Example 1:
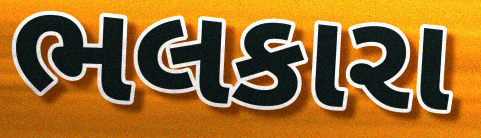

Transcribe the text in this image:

ભલકારા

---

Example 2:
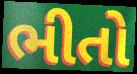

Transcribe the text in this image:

ભીતો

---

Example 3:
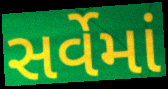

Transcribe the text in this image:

સર્વેમાં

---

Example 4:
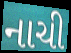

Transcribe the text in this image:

નાચી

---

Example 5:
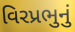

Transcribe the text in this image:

વિરપ્રભુનું